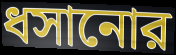
ধসানোর